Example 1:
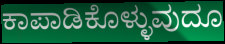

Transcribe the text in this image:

ಕಾಪಾಡಿಕೊಳ್ಳುವುದೂ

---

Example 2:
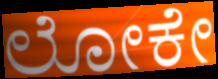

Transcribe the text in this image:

ಲೋಕೇ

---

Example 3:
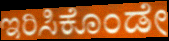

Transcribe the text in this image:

ಇರಿಸಿಕೊಂಡೇ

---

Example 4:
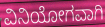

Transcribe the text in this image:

ವಿನಿಯೋಗವಾಗಿ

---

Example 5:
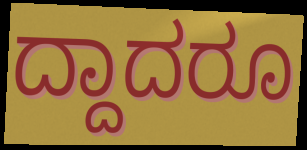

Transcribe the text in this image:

ದ್ದಾದರೂ